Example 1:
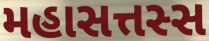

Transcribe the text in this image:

મહાસત્તસ્સ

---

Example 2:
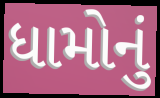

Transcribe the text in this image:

ધામોનું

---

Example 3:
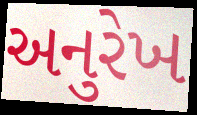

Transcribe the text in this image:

અનુરેખ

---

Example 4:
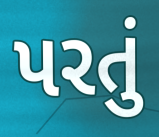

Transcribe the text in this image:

પરતું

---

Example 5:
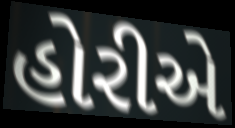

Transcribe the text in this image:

હોરીએ